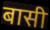
बासी